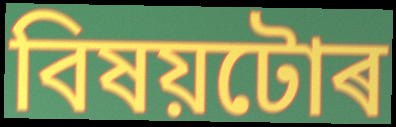
বিষয়টোৰ